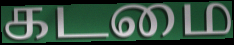
கடமை